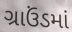
ગ્રાઉંડમાં